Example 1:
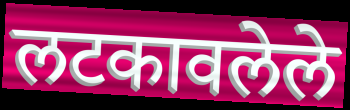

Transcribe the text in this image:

लटकावलेले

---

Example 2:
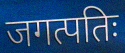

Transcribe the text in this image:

जगत्पतिः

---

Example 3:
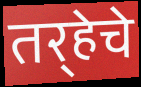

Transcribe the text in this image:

तर्‍हेचे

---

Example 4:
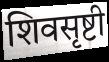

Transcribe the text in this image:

शिवसृष्टी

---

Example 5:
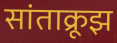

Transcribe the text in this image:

सांताक्रूझ